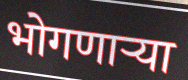
भोगणाऱ्या